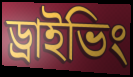
ড্রাইভিং